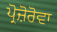
ਪ੍ਰੋਜ਼ੋਰੋਵਾ